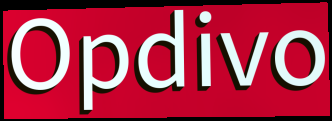
Opdivo